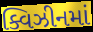
ક્વિઝીનમાં